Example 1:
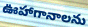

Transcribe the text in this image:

ఊహాగానాలను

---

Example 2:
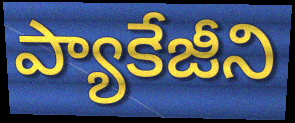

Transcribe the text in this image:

ప్యాకేజీని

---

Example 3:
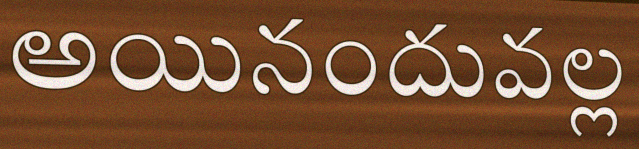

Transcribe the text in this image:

అయినందువల్ల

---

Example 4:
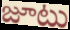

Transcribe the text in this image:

జూటు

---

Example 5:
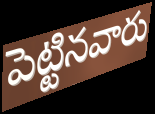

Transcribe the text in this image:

పెట్టినవారు